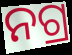
ନଗ୍ର